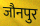
जौनपुर